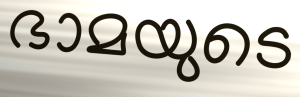
ഭാമയുടെ